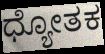
ಧ್ಯೋತಕ